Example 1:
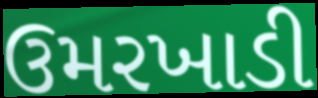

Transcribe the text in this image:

ઉમરખાડી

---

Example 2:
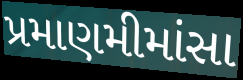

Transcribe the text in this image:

પ્રમાણમીમાંસા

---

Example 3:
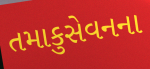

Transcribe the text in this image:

તમાકુસેવનના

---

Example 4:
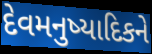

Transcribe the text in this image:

દેવમનુષ્યાદિકને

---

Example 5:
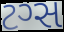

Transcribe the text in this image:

ટગ્સ